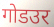
गोडउर